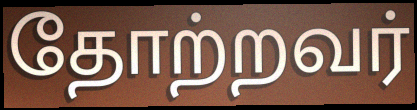
தோற்றவர்